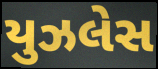
યુઝલેસ